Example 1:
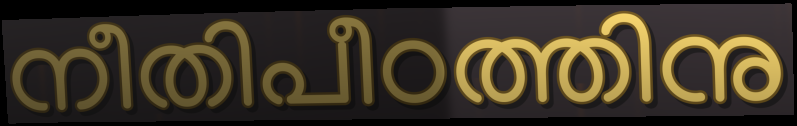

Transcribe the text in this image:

നീതിപീഠത്തിനു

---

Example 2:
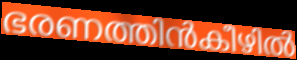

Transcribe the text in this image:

ഭരണത്തിൻകീഴിൽ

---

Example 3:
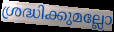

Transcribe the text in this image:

ശ്രദ്ധിക്കുമല്ലോ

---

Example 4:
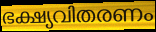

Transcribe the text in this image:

ഭക്ഷ്യവിതരണം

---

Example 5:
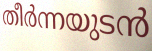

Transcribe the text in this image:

തീർന്നയുടൻ